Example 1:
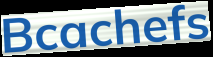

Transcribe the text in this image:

Bcachefs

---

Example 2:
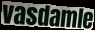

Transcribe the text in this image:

vasdamle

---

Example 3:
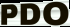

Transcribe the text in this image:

PDO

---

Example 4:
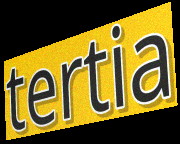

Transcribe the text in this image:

tertia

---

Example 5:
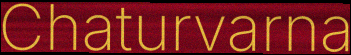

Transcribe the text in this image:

Chaturvarna